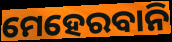
ମେହେରବାନି